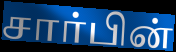
சார்பின்